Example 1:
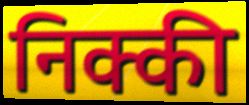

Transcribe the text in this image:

निक्की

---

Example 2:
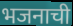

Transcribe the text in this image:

भजनाची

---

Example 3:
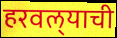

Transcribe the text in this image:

हरवल्याची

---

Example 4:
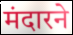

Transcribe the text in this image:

मंदारने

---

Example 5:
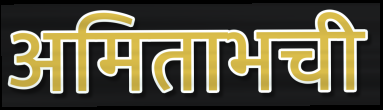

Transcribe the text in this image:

अमिताभची